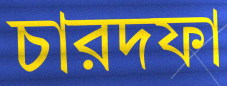
চারদফা